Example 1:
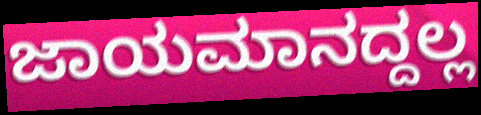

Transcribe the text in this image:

ಜಾಯಮಾನದ್ದಲ್ಲ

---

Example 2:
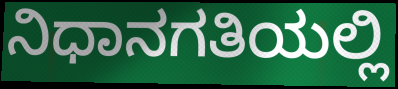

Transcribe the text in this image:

ನಿಧಾನಗತಿಯಲ್ಲಿ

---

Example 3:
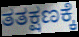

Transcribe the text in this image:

ತತಕ್ಷಣಕ್ಕೆ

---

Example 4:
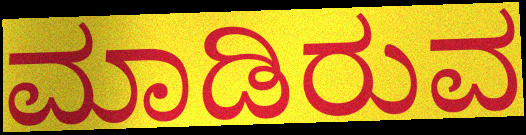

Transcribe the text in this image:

ಮಾಡಿರುವ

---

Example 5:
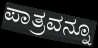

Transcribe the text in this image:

ಪಾತ್ರವನ್ನೂ